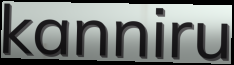
kanniru